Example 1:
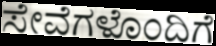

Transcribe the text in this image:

ಸೇವೆಗಳೊಂದಿಗೆ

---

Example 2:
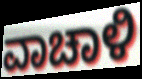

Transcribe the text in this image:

ವಾಚಾಳಿ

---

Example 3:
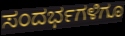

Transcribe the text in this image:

ಸಂದರ್ಭಗಳಿಗೂ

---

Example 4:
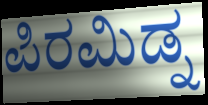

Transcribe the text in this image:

ಪಿರಮಿಡ್ನ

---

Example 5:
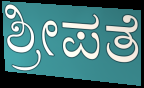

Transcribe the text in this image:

ಶ್ರೀಪತೆ